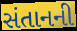
સંતાનની